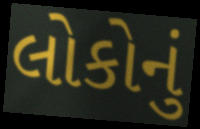
લોકોનું